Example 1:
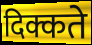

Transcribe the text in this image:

दिक्कते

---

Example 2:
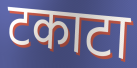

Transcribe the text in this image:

टकाटा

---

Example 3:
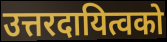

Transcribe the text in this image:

उत्तरदायित्वको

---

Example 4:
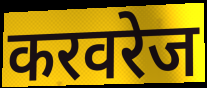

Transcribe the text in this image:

करवरेज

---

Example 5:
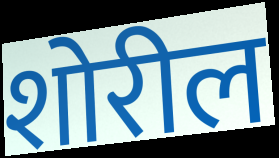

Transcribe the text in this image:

शोरील